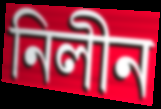
নিলীন